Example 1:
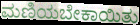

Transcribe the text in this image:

ಮಣಿಯಬೇಕಾಯಿತು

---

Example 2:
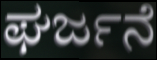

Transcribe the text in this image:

ಘರ್ಜನೆ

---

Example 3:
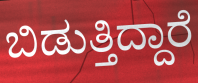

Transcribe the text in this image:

ಬಿಡುತ್ತಿದ್ದಾರೆ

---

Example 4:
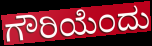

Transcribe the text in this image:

ಗೌರಿಯೆಂದು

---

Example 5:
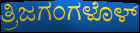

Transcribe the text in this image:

ತ್ರಿಜಗಂಗಳೊಳ್